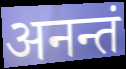
अनन्तं